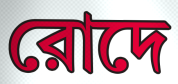
রোদে